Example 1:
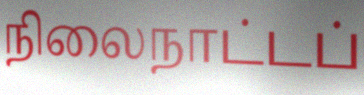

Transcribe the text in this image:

நிலைநாட்டப்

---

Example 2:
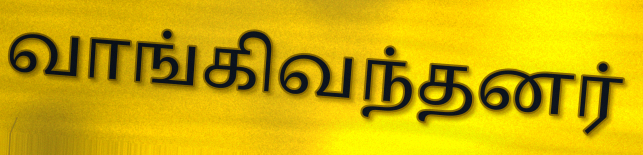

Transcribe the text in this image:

வாங்கிவந்தனர்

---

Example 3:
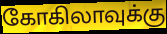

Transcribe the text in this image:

கோகிலாவுக்கு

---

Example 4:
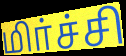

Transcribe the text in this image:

மிர்ச்சி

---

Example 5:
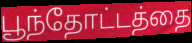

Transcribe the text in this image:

பூந்தோட்டத்தை